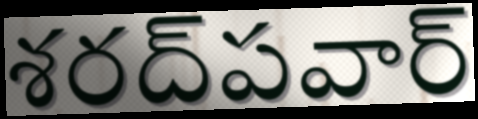
శరద్‌పవార్